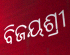
ବିଜୟଶ୍ରୀ